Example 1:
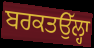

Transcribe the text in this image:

ਬਰਕਤਉੱਲ੍ਹਾ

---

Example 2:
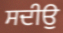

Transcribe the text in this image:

ਸਦੀਉ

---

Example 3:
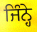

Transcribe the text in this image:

ਜਿੰਨ੍ਹੇ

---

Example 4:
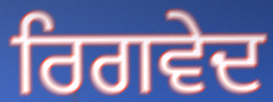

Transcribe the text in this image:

ਰਿਗਵੇਦ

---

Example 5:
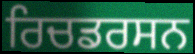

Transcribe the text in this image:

ਰਿਚਡਰਸਨ